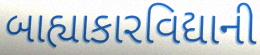
બાહ્યાકારવિદ્યાની